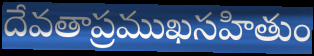
దేవతాప్రముఖసహితుం